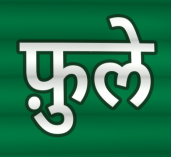
फ़ुले